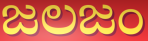
జలజం